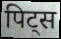
पिट्स